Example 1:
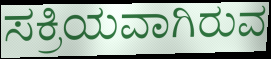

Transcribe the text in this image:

ಸಕ್ರಿಯವಾಗಿರುವ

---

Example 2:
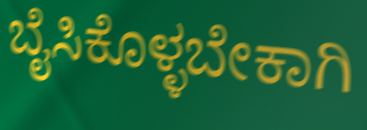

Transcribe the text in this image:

ಬೈಸಿಕೊಳ್ಳಬೇಕಾಗಿ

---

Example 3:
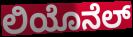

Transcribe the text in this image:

ಲಿಯೊನೆಲ್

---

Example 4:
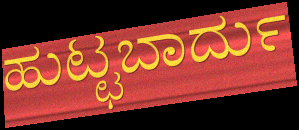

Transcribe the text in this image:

ಹುಟ್ಟಬಾರ್ದು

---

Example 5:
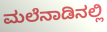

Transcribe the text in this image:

ಮಲೆನಾಡಿನಲ್ಲಿ